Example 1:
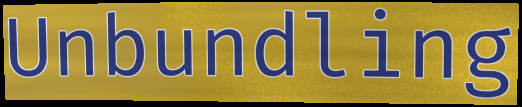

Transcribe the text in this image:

Unbundling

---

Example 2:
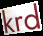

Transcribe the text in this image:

krd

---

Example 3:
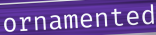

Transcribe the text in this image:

ornamented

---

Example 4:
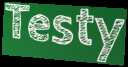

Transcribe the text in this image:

Testy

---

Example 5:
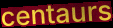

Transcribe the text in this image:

centaurs